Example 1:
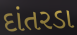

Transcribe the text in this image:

દાંતરડા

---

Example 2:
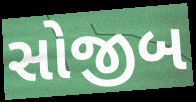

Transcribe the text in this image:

સોજીબ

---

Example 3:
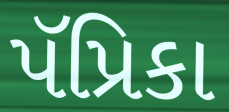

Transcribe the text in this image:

પૅપ્રિકા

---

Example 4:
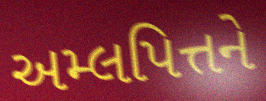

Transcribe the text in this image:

અમ્લપિત્તને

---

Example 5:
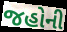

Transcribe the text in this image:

જહોની